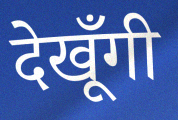
देखूँगी